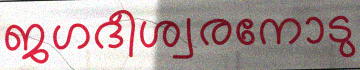
ജഗദീശ്വരനോടു